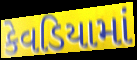
કેવડિયામાં